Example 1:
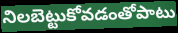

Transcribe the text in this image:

నిలబెట్టుకోవడంతోపాటు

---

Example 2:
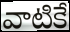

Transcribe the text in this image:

వాటికే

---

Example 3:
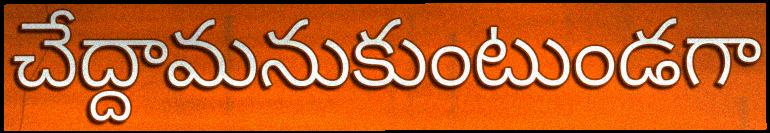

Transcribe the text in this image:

చేద్దామనుకుంటుండగా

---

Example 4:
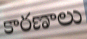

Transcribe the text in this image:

కారణాలు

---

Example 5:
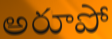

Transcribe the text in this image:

అరూపో